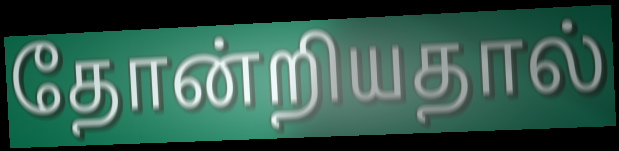
தோன்றியதால்